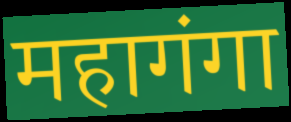
महागंगा